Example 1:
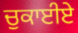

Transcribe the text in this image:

ਚੁਕਾਈਏ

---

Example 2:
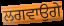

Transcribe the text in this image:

ਲਗਵਾਉਗੇ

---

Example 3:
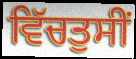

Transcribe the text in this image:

ਵਿੱਚਤੁਸੀਂ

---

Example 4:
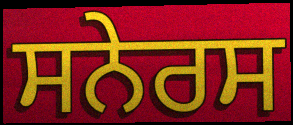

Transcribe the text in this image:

ਸਨੇਰਸ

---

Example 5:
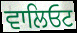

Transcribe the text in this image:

ਵਾਲਿਓਟ